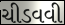
ચીડવવી